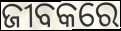
ଜୀବକରେ